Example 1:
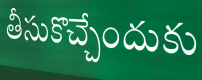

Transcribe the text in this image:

తీసుకొచ్చేందుకు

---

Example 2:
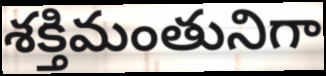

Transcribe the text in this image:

శక్తిమంతునిగా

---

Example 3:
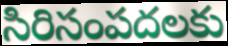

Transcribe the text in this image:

సిరిసంపదలకు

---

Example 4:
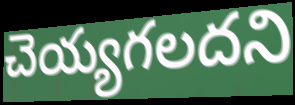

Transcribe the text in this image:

చెయ్యగలదని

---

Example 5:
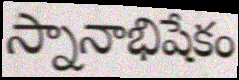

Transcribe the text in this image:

స్నానాభిషేకం